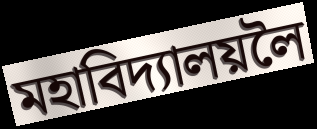
মহাবিদ্যালয়লৈ